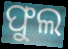
ଫୁଲ